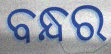
ବନ୍ଧର